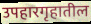
उपहारगृहातील